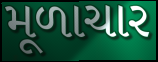
મૂળાચાર